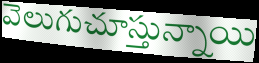
వెలుగుచూస్తున్నాయి